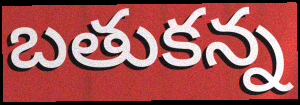
బతుకన్న